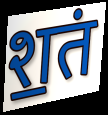
श॒तं